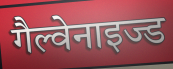
गैल्वेनाइज्ड